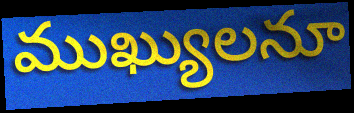
ముఖ్యులనూ